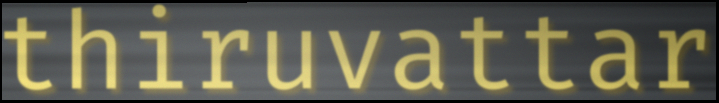
thiruvattar